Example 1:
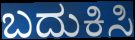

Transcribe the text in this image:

ಬದುಕಿಸಿ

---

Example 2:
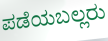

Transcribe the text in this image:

ಪಡೆಯಬಲ್ಲರು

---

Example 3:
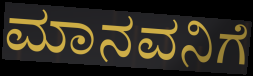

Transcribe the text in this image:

ಮಾನವನಿಗೆ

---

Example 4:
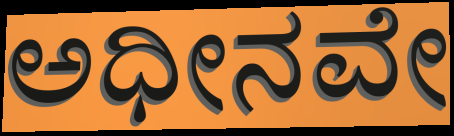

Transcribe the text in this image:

ಅಧೀನವೇ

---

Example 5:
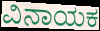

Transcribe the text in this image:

ವಿನಾಯಕ